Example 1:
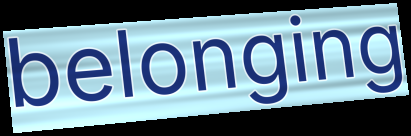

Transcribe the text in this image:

belonging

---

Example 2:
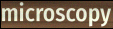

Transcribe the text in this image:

microscopy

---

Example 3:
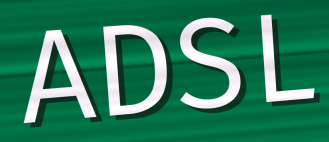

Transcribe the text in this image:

ADSL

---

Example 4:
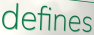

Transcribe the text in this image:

defines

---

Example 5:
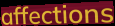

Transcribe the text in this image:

affections